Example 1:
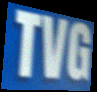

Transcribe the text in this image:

TVG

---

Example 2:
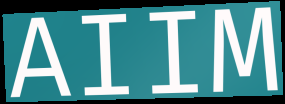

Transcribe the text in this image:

AIIM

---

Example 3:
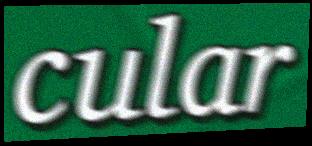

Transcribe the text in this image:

cular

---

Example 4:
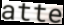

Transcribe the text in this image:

atte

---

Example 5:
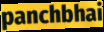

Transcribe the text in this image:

panchbhai